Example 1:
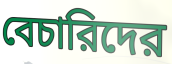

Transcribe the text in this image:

বেচারিদের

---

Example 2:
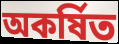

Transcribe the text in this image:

অকর্ষিত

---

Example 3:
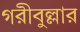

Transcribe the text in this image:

গরীবুল্লার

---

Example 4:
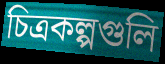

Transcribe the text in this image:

চিত্রকল্পগুলি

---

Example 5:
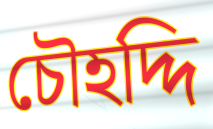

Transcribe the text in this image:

চৌহদ্দি